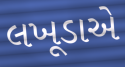
લખૂડાએ